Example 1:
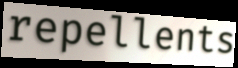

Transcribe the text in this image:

repellents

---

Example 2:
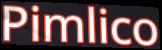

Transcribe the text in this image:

Pimlico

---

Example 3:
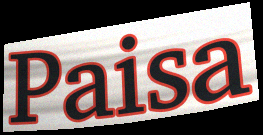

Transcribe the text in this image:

Paisa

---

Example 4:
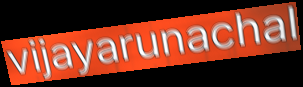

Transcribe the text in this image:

vijayarunachal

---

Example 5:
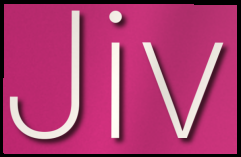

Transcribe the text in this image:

Jiv